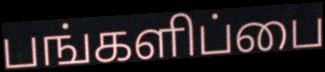
பங்களிப்பை